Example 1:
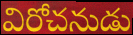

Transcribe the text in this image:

విరోచనుడు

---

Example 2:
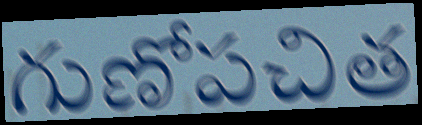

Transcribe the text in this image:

గుణోపచిత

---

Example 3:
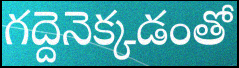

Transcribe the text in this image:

గద్దెనెక్కడంతో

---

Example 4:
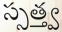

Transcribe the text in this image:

స్సత్త్వ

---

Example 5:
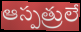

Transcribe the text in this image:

ఆస్పత్రులే